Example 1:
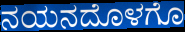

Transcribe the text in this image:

ನಯನದೊಳಗೊ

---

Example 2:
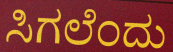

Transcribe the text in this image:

ಸಿಗಲೆಂದು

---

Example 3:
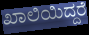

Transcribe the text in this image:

ಖಾಲಿಯಿದ್ದರೆ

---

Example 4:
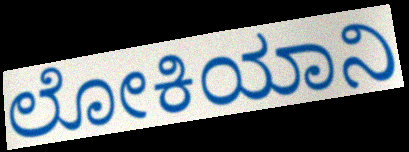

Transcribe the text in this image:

ಲೋಕಿಯಾನಿ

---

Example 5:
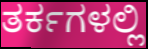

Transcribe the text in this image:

ತರ್ಕಗಳಲ್ಲಿ